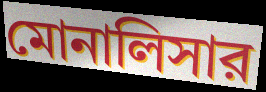
মোনালিসার